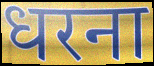
धरना